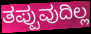
ತಪ್ಪುವುದಿಲ್ಲ